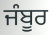
ਜੰਬੂਰ